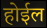
होईल